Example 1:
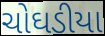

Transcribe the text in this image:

ચોઘડીયા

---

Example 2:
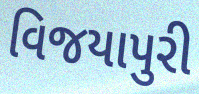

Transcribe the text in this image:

વિજયાપુરી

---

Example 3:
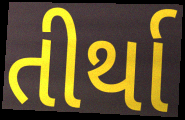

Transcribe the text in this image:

તીર્થા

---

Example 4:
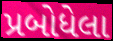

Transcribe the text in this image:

પ્રબોધેલા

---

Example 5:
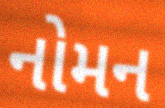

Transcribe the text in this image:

નોમન